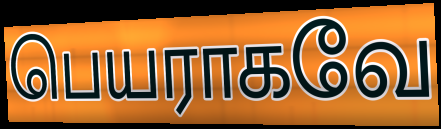
பெயராகவே